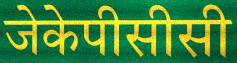
जेकेपीसीसी